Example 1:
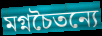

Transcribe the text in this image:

মগ্নচৈতন্যে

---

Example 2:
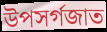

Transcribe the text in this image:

উপসর্গজাত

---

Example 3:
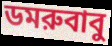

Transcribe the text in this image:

ডমরুবাবু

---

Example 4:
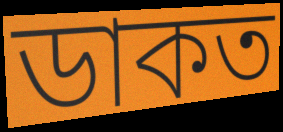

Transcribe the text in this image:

ডাকত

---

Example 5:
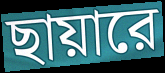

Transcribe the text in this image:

ছায়ারে